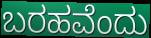
ಬರಹವೆಂದು